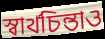
স্বার্থচিন্তাও